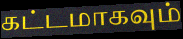
கட்டமாகவும்